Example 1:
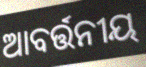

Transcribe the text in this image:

ଆବର୍ତ୍ତନୀୟ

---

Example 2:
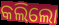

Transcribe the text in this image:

କଲିଲୋ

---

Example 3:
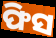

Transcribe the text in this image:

ଫିସ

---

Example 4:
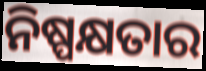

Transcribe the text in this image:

ନିଷ୍ପକ୍ଷତାର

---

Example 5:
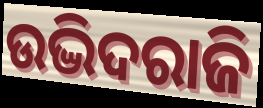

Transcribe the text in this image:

ଉଦ୍ଭିଦରାଜି